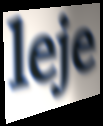
leje